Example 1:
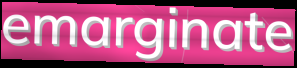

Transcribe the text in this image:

emarginate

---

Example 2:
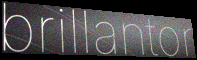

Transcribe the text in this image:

brillantor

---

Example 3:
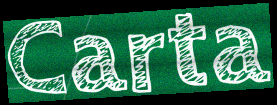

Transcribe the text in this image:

Carta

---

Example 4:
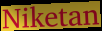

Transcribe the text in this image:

Niketan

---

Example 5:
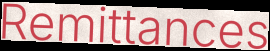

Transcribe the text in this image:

Remittances